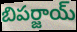
బిపర్జాయ్